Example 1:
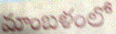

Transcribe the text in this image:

మాంబళంలో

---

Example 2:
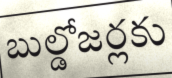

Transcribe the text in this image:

బుల్డోజర్లకు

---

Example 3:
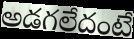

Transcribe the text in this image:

అడగలేదంటే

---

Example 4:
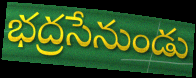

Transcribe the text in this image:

భద్రసేనుండు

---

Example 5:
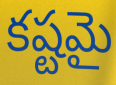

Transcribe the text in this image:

కష్టమై